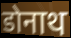
डोनाथ